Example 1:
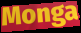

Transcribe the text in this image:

Monga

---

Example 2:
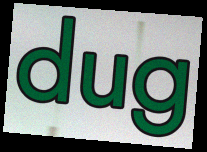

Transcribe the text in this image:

dug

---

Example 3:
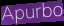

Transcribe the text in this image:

Apurbo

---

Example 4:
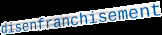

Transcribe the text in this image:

disenfranchisement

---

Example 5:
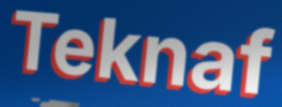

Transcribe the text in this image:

Teknaf